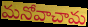
మనోవాచామ